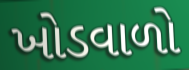
ખોડવાળો